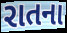
રાતના